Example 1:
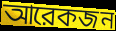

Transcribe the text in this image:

আরেকজন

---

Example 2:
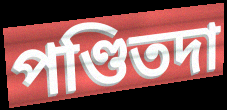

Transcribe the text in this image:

পণ্ডিতদা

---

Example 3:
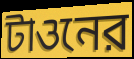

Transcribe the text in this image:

টাওনের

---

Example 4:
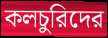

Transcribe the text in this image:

কলচুরিদের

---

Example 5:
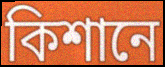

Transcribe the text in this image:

কিশানে